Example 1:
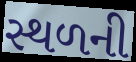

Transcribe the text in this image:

સ્થળની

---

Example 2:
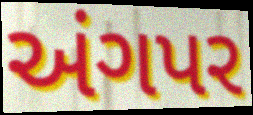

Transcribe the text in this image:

અંગપર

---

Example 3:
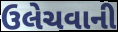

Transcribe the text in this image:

ઉલેચવાની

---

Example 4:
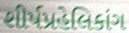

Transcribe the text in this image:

શીર્ષપ્રહેલિકાંગ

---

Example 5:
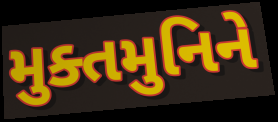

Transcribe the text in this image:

મુક્તમુનિને